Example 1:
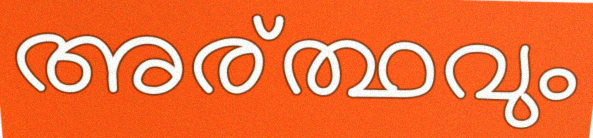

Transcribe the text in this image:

അര്ത്ഥവും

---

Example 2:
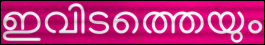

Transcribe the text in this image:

ഇവിടത്തെയും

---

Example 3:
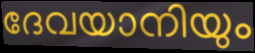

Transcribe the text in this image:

ദേവയാനിയും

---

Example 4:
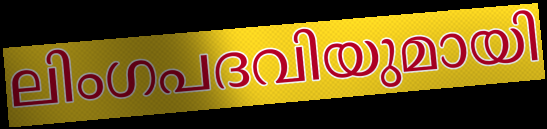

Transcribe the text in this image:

ലിംഗപദവിയുമായി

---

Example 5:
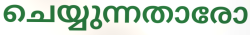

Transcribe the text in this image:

ചെയ്യുന്നതാരോ